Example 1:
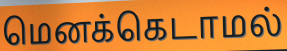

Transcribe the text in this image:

மெனக்கெடாமல்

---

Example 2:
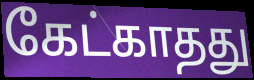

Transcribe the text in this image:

கேட்காதது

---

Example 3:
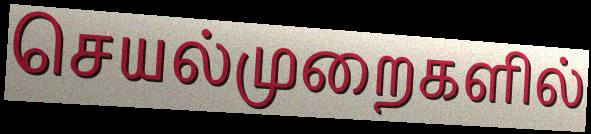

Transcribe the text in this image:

செயல்முறைகளில்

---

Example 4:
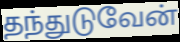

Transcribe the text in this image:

தந்துடுவேன்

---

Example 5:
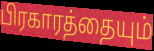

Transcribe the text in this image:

பிரகாரத்தையும்